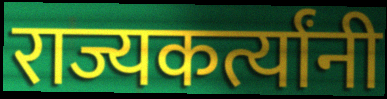
राज्यकर्त्यांनी